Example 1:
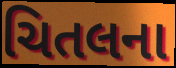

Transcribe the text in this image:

ચિતલના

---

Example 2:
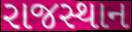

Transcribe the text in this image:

રાજસ્થાન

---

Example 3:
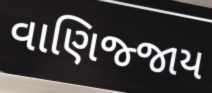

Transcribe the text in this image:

વાણિજ્જાય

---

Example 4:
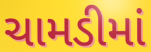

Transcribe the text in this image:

ચામડીમાં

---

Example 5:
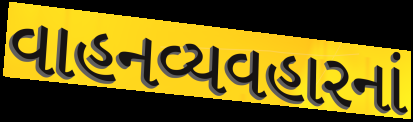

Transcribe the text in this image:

વાહનવ્યવહારનાં